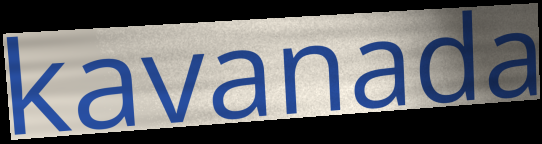
kavanada